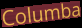
Columba